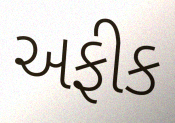
અફીક